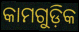
କାମଗୁଡ଼ିକ